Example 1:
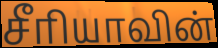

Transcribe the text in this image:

சீரியாவின்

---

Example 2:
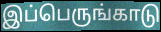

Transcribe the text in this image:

இப்பெருங்காடு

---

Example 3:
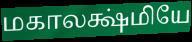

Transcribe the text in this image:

மகாலக்ஷ்மியே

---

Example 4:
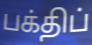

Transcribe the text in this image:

பக்திப்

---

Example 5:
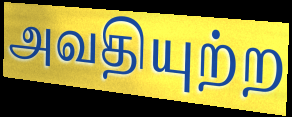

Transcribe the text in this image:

அவதியுற்ற